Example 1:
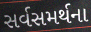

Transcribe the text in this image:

સર્વસમર્થના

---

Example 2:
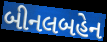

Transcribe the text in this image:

બીનલબહેન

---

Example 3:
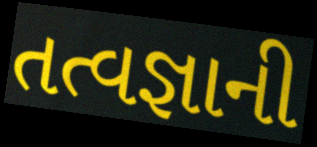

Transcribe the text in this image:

તત્વજ્ઞાની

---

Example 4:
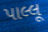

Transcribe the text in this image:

પાલ્લૂ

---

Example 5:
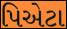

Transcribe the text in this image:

પિએટા